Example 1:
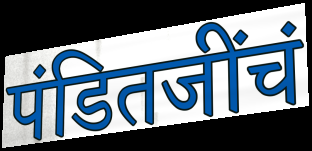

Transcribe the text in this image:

पंडितजींचं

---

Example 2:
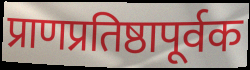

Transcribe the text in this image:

प्राणप्रतिष्ठापूर्वक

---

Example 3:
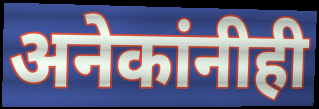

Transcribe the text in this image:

अनेकांनीही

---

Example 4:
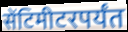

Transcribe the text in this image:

सेंटिमीटरपर्यंत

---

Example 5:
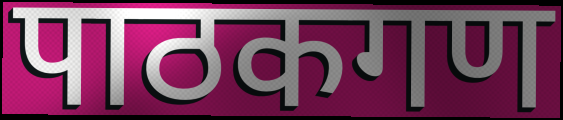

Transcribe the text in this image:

पाठकगण